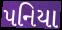
પનિયા